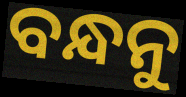
ବନ୍ଧନୁ